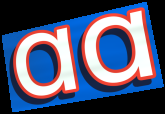
aa